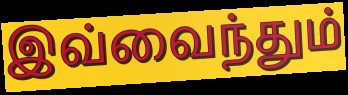
இவ்வைந்தும்